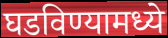
घडविण्यामध्ये